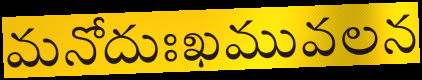
మనోదుఃఖమువలన